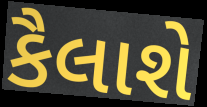
કૈલાશે